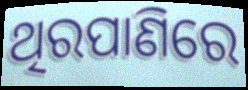
ଥିରପାଣିରେ